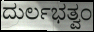
ದುರ್ಲಭತ್ವಂ